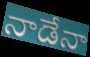
నాడేనా